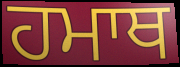
ਹਮਾਥ